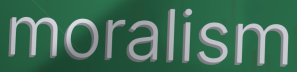
moralism